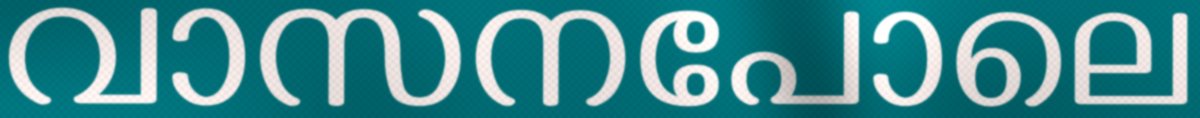
വാസനപോലെ